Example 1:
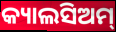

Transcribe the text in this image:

କ୍ୟାଲସିଅମ୍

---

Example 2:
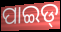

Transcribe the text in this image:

ପାଇଡ୍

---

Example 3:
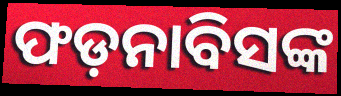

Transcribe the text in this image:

ଫଡ଼ନାବିସଙ୍କ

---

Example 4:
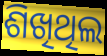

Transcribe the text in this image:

ଶିଖିଥିଲ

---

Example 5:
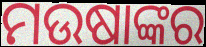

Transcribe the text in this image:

ମଉଷାଙ୍କର